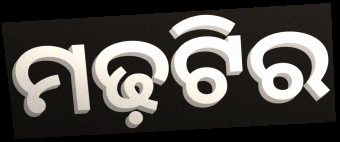
ମଢ଼ଟିର